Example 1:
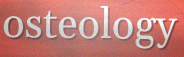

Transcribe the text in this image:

osteology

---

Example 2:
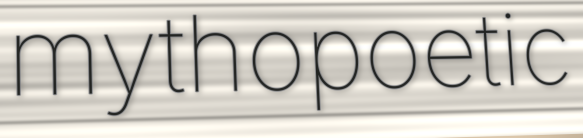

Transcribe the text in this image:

mythopoetic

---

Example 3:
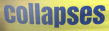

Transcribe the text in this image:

collapses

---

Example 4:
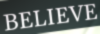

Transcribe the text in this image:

BELIEVE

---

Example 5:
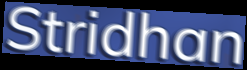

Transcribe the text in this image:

Stridhan